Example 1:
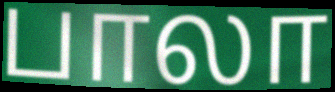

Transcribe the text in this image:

பாலா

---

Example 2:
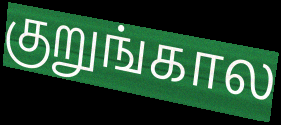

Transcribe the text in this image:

குறுங்கால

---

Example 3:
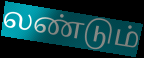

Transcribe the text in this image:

லண்டும்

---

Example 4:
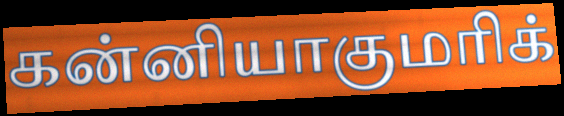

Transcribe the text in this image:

கன்னியாகுமரிக்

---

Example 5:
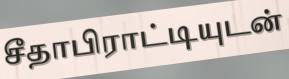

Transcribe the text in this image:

சீதாபிராட்டியுடன்